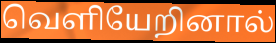
வெளியேறினால்